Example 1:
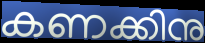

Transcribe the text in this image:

കണക്കിനു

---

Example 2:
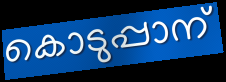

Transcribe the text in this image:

കൊടുപ്പാന്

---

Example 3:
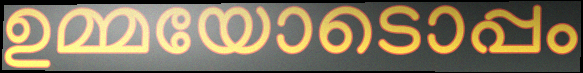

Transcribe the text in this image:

ഉമ്മയോടൊപ്പം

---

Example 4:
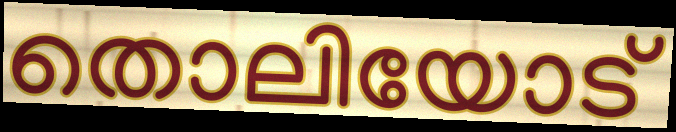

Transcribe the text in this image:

തൊലിയോട്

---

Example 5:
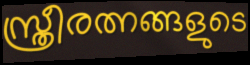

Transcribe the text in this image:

സ്ത്രീരത്നങ്ങളുടെ